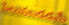
పిలువబడడమే